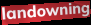
landowning